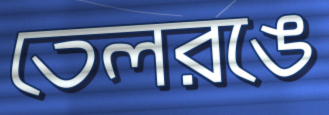
তেলরঙে